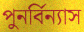
পুনর্বিন্যাস